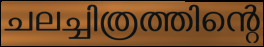
ചലച്ചിത്രത്തിന്റെ